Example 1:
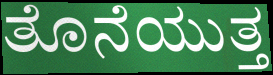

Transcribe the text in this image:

ತೊನೆಯುತ್ತ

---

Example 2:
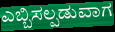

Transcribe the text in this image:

ಎಬ್ಬಿಸಲ್ಪಡುವಾಗ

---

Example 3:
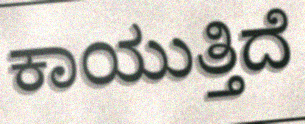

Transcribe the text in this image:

ಕಾಯುತ್ತಿದೆ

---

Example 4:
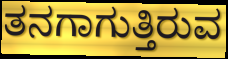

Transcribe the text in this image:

ತನಗಾಗುತ್ತಿರುವ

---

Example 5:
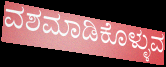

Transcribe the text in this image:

ವಶಮಾಡಿಕೊಳ್ಳುವ